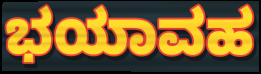
ಭಯಾವಹ